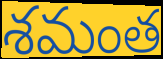
శమంత